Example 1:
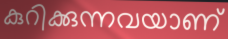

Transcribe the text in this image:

കുറിക്കുന്നവയാണ്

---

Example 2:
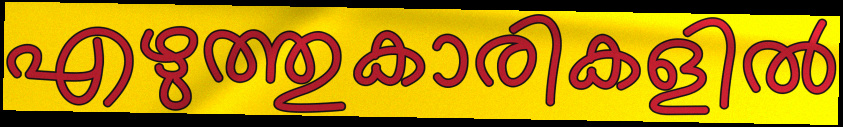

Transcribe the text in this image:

എഴുത്തുകാരികളിൽ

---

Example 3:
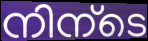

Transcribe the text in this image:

നിന്ടെ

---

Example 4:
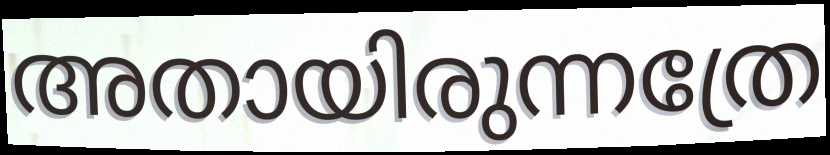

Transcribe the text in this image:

അതായിരുന്നത്രേ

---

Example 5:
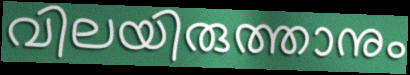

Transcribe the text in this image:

വിലയിരുത്താനും